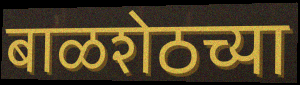
बाळशेठच्या